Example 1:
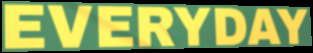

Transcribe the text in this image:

EVERYDAY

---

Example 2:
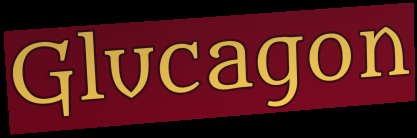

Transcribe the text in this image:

Glucagon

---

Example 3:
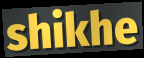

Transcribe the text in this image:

shikhe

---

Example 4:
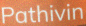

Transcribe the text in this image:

Pathivin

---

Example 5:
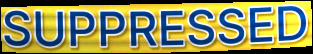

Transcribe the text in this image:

SUPPRESSED